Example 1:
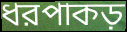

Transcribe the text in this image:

ধরপাকড়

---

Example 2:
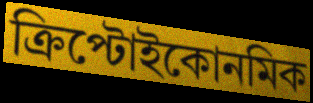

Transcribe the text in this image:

ক্রিপ্টোইকোনমিক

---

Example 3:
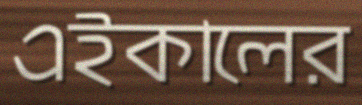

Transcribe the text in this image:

এইকালের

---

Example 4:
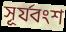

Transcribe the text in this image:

সূর্যবংশ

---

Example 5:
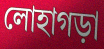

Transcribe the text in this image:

লোহাগড়া